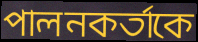
পালনকর্তাকে